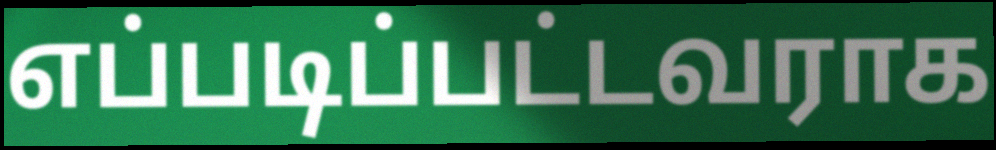
எப்படிப்பட்டவராக